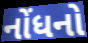
નોંધનો